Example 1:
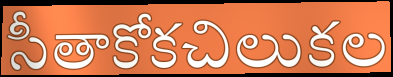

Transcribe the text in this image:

సీతాకోకచిలుకల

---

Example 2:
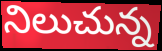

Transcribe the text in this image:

నిలుచున్న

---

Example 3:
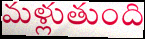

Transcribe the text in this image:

మళ్లుతుంది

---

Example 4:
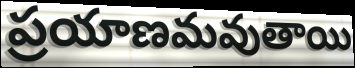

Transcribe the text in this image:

ప్రయాణమవుతాయి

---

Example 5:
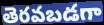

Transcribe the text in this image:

తెరవబడగా